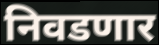
निवडणार